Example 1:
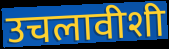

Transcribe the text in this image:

उचलावीशी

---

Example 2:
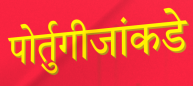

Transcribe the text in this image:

पोर्तुगीजांकडे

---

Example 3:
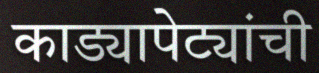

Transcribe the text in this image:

काड्यापेट्यांची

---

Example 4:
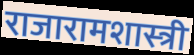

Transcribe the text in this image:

राजारामशास्त्री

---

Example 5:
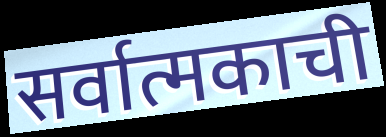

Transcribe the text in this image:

सर्वात्मकाची